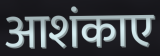
आशंकाए